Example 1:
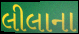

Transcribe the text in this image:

લીલાના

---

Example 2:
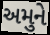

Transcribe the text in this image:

અમુને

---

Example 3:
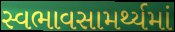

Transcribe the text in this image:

સ્વભાવસામર્થ્યમાં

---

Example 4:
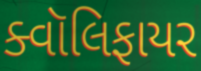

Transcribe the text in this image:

ક્વૉલિફાયર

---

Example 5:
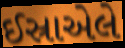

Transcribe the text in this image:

ઈસ્રાએલે